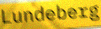
Lundeberg